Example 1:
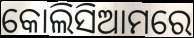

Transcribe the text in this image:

କୋଲିସିଆମରେ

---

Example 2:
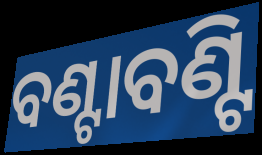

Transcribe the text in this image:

ବଣ୍ଟାବଣ୍ଟି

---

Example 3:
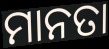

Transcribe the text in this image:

ମାନତା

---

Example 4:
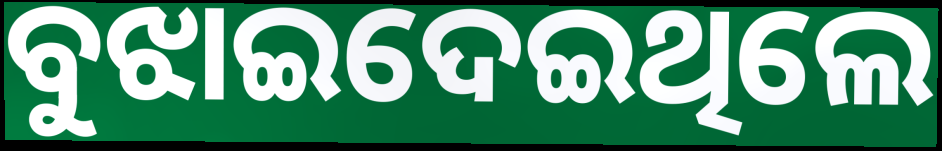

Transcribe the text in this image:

ବୁଝାଇଦେଇଥିଲେ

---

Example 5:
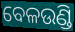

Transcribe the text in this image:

ବେଳଉଣ୍ଡି